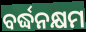
ବର୍ଦ୍ଧନକ୍ଷମ